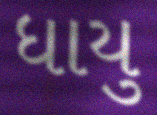
ધાયુ